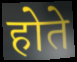
होते